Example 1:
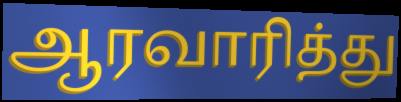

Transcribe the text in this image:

ஆரவாரித்து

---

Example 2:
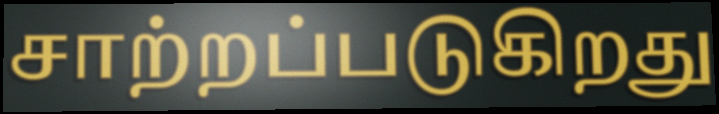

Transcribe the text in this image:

சாற்றப்படுகிறது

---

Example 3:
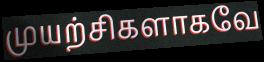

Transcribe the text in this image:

முயற்சிகளாகவே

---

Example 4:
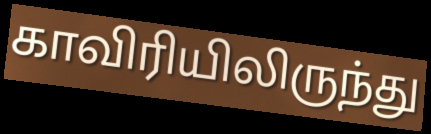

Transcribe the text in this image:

காவிரியிலிருந்து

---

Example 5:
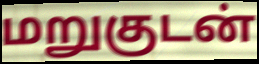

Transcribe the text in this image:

மறுகுடன்